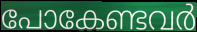
പോകേണ്ടവർ